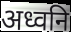
अध्वनि